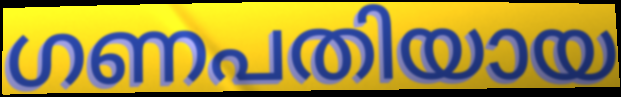
ഗണപതിയായ